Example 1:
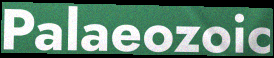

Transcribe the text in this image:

Palaeozoic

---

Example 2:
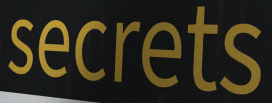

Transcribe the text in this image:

secrets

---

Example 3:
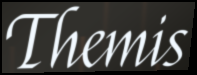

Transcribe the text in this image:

Themis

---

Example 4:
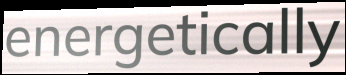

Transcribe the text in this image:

energetically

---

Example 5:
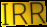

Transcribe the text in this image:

IRR